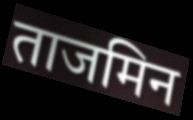
ताजमिन